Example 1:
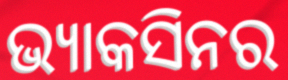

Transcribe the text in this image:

ଭ୍ୟାକସିନର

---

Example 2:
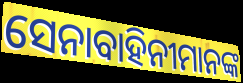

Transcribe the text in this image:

ସେନାବାହିନୀମାନଙ୍କ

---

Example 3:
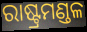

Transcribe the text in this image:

ରାଷ୍ଟ୍ରମଣ୍ଡଳ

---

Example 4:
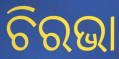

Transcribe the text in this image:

ଚିରଭା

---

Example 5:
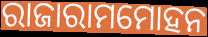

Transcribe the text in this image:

ରାଜାରାମମୋହନ